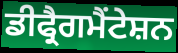
ਡੀਫ੍ਰੈਗਮੈਂਟੇਸ਼ਨ